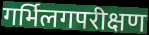
गर्भिलगपरीक्षण